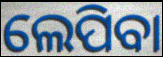
ଲେପିବା